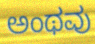
ಅಂಥವು